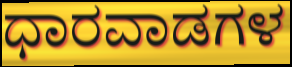
ಧಾರವಾಡಗಳ